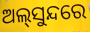
ଅଲ୍‌ସୁନ୍ଦରେ